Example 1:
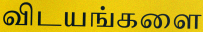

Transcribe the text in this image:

விடயங்களை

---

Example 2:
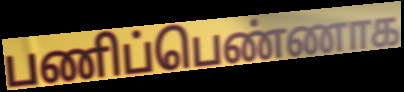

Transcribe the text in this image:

பணிப்பெண்ணாக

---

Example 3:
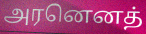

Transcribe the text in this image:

அரனெனத்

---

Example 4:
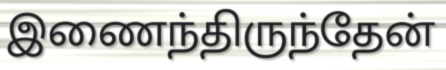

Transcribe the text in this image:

இணைந்திருந்தேன்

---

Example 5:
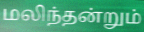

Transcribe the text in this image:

மலிந்தன்றும்